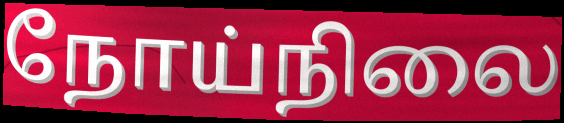
நோய்நிலை